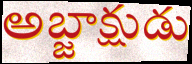
అబ్జాక్షుడు